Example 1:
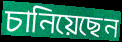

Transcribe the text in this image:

চানিয়েছেন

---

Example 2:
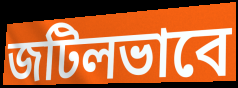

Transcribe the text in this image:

জটিলভাবে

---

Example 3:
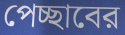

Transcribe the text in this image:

পেচ্ছাবের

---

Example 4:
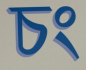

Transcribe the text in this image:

চং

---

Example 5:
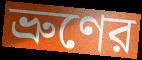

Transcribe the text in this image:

ভ্রুণের